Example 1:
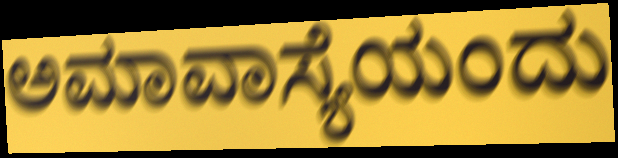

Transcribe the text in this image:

ಅಮಾವಾಸ್ಯೆಯಂದು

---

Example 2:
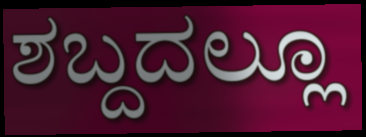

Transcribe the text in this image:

ಶಬ್ದದಲ್ಲೂ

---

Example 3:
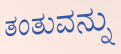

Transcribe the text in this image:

ತಂತುವನ್ನು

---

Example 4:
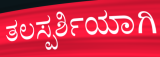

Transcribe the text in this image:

ತಲಸ್ಪರ್ಶಿಯಾಗಿ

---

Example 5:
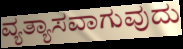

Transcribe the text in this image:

ವ್ಯತ್ಯಾಸವಾಗುವುದು